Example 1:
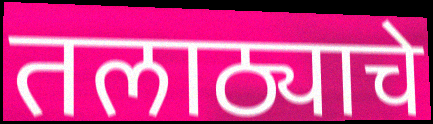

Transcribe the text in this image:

तलाठ्याचे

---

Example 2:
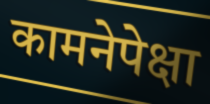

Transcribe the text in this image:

कामनेपेक्षा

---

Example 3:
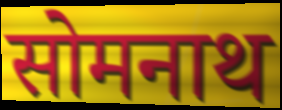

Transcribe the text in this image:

सोमनाथ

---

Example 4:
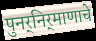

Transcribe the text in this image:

पुनर्निर्माणाचे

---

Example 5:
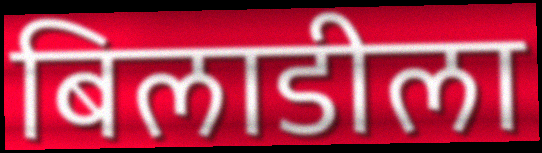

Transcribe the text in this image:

बिलाडीला